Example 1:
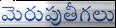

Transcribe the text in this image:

మెరుపుతీగలు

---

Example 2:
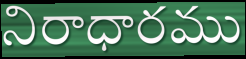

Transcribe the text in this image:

నిరాధారము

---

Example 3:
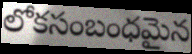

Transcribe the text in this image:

లోకసంబంధమైన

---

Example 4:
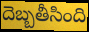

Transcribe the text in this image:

దెబ్బతీసింది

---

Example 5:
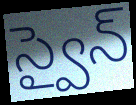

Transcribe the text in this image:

స్వైన్